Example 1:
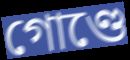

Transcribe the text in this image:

গোণ্ডে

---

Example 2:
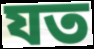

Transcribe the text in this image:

যত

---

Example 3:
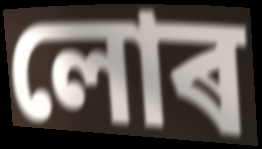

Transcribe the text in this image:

লোৰ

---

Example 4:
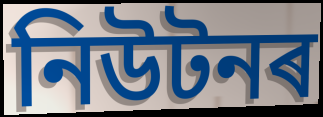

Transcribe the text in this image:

নিউটনৰ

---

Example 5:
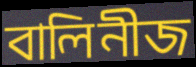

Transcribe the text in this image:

বালিনীজ